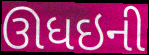
ઊધઇની